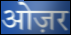
ओज़र